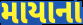
માયાના